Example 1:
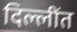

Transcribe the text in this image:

दिल्लींत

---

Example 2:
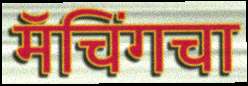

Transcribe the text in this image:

मॅचिंगचा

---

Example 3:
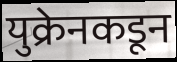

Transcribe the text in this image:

युक्रेनकडून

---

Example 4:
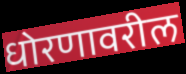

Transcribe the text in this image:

धोरणावरील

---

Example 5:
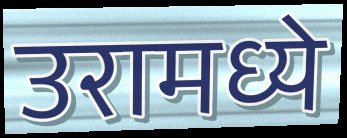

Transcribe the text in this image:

उरामध्ये